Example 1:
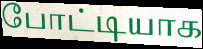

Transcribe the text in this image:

போட்டியாக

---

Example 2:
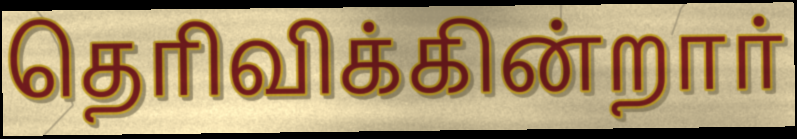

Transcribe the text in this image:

தெரிவிக்கின்றார்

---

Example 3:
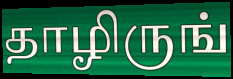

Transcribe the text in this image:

தாழிருங்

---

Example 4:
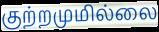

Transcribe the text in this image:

குற்றமுமில்லை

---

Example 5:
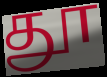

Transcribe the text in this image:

தூ